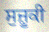
ਸੁਜ਼ੂਕੀ